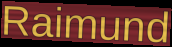
Raimund